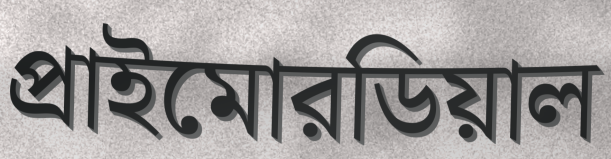
প্রাইমোরডিয়াল